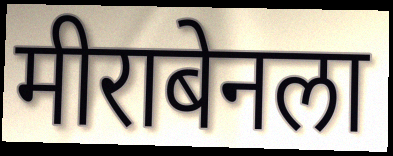
मीराबेनला